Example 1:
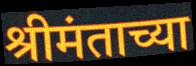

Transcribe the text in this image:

श्रीमंताच्या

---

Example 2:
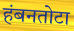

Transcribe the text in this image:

हंबनतोटा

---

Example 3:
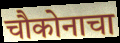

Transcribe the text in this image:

चौकोनाचा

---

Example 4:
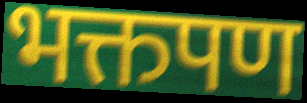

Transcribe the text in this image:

भक्तपण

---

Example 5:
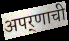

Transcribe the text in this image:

अपर्णाची